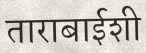
ताराबाईशी